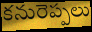
కనురెప్పలు